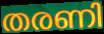
തരണി